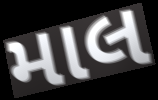
માલ